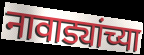
नावाड्यांच्या